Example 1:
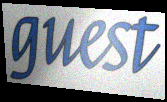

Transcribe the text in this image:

guest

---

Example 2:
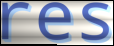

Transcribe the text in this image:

res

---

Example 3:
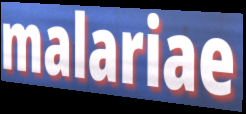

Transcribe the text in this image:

malariae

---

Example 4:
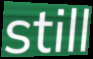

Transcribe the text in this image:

still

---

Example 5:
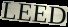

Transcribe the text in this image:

LEED